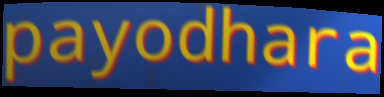
payodhara